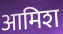
आमिश